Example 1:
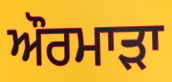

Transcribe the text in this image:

ਔਰਮਾੜਾ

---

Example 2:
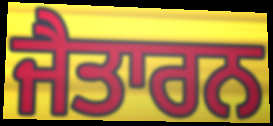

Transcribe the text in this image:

ਜੈਤਾਰਨ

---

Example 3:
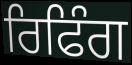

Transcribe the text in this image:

ਰਿਫਿੰਗ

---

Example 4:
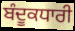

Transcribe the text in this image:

ਬੰਦੂਕਧਾਰੀ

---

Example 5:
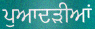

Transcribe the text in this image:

ਪੁਆਦੜੀਆਂ